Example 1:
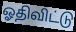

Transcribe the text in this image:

ஓதிவிட்டு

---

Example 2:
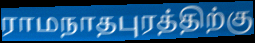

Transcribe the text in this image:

ராமநாதபுரத்திற்கு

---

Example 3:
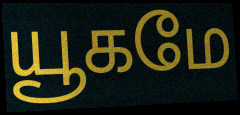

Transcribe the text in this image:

யூகமே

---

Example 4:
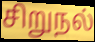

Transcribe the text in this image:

சிறுநல்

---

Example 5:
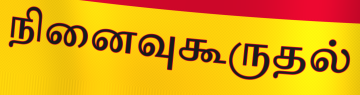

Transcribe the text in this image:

நினைவுகூருதல்